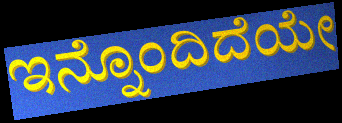
ಇನ್ನೊಂದಿದೆಯೇ